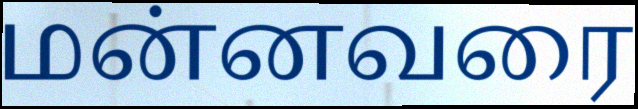
மன்னவரை